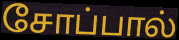
சோப்பால்